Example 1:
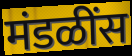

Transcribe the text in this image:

मंडळींस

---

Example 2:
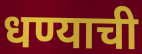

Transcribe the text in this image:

धण्याची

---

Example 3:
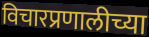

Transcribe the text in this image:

विचारप्रणालीच्या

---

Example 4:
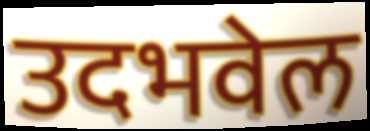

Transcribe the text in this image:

उदभवेल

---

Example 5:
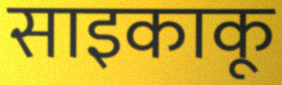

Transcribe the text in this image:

साइकाकू